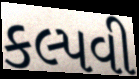
કલ્પવી